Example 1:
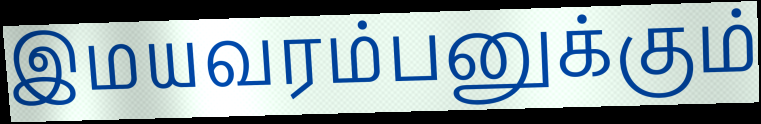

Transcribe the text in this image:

இமயவரம்பனுக்கும்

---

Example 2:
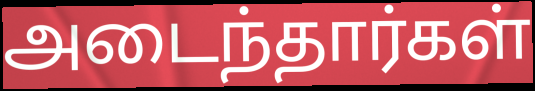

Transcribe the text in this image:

அடைந்தார்கள்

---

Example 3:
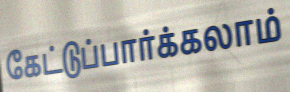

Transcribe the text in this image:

கேட்டுப்பார்க்கலாம்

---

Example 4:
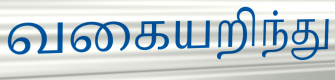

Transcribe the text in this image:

வகையறிந்து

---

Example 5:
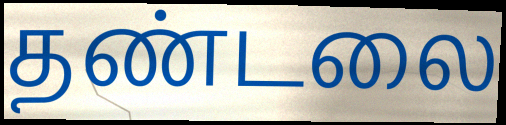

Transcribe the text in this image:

தண்டலை